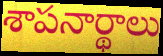
శాపనార్థాలు